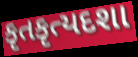
કૃતકૃત્યદશા